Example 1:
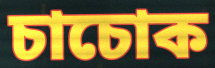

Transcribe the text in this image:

চাচোক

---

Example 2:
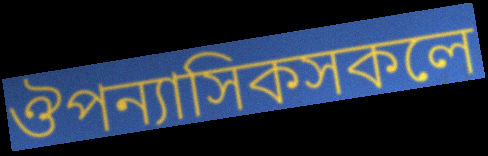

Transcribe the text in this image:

ঔপন্যাসিকসকলে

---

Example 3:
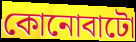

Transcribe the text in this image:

কোনোবাটো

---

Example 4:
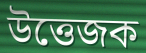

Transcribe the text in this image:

উত্তেজক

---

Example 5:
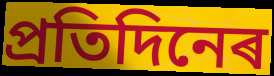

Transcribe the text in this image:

প্ৰতিদিনেৰ